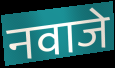
नवाजे